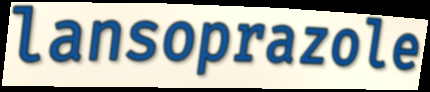
lansoprazole